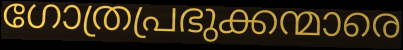
ഗോത്രപ്രഭുക്കന്മാരെ